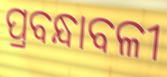
ପ୍ରବନ୍ଧାବଳୀ